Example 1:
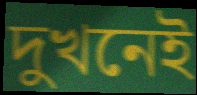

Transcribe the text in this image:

দুখনেই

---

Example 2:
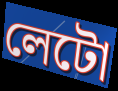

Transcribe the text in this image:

লেটো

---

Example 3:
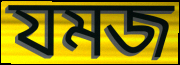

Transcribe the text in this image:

যমজ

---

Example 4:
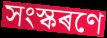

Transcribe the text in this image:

সংস্কৰণে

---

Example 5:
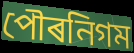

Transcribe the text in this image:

পৌৰনিগম